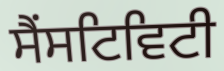
ਸੈਂਸਟਿਵਿਟੀ